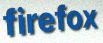
firefox